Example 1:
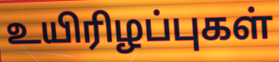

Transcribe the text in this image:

உயிரிழப்புகள்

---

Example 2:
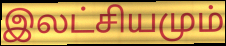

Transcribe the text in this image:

இலட்சியமும்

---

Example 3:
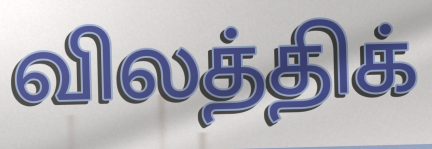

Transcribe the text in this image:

விலத்திக்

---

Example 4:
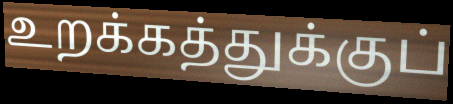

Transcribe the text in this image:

உறக்கத்துக்குப்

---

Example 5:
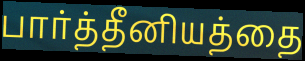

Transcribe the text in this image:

பார்த்தீனியத்தை